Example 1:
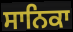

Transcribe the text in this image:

ਸਾਨਿਕਾ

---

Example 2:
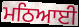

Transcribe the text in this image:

ਮਠਿਆਈ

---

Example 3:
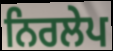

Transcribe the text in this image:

ਨਿਰਲੇਪ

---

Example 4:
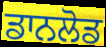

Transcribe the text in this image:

ਡਾਨਲੋਡ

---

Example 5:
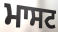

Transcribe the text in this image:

ਮਾਸਟ